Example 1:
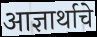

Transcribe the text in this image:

आज्ञार्थाचे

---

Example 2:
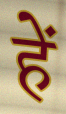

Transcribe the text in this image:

हें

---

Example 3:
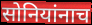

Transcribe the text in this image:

सोनियांनाच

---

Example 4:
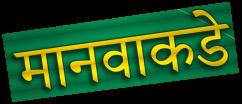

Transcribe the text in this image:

मानवाकडे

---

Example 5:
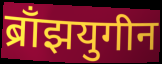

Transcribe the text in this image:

ब्राँझयुगीन